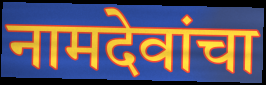
नामदेवांचा